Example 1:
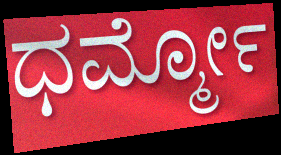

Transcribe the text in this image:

ಧರ್ಮ್ಮೋ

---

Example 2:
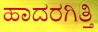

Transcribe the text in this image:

ಹಾದರಗಿತ್ತಿ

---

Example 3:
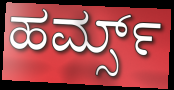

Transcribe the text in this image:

ಹರ್ಮ್ಸ್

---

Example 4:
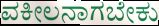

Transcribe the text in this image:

ವಕೀಲನಾಗಬೇಕು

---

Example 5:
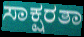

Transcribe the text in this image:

ಸಾಕ್ಷರತಾ